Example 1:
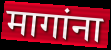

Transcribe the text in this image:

मागांना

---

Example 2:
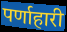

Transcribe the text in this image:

पर्णाहारी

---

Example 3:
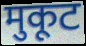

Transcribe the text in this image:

मुकूट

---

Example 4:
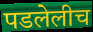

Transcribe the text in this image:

पडलेलीच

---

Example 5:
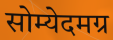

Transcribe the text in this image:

सोम्येदमग्र